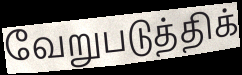
வேறுபடுத்திக்